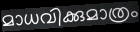
മാധവിക്കുമാത്രം